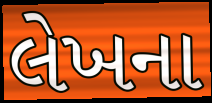
લેખના